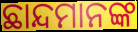
ଛାନ୍ଦମାନଙ୍କ